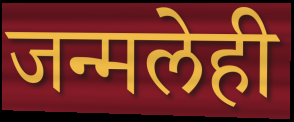
जन्मलेही